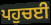
ਪਹੁਚਈ